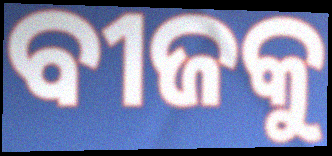
ବୀଜକୁ